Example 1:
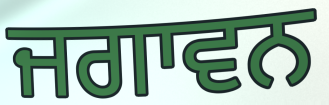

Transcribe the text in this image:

ਜਗਾਵਨ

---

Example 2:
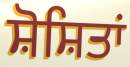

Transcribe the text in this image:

ਸ਼ੋਸ਼ਿਤਾਂ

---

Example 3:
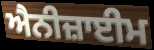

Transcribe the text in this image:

ਐਨੀਜ਼ਾਈਮ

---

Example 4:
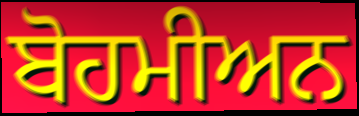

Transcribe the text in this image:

ਬੋਹਮੀਅਨ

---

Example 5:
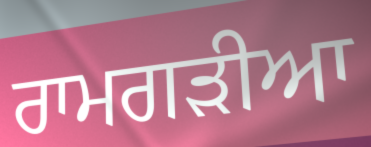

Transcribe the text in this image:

ਰਾਮਗੜੀਆ